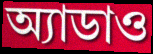
অ্যাডাও